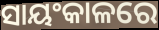
ସାୟଂକାଳରେ